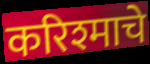
करिश्माचे